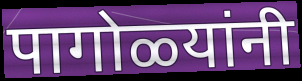
पागोळ्यांनी